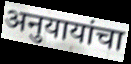
अनुयायांचा